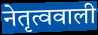
नेतृत्ववाली